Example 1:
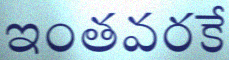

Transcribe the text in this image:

ఇంతవరకే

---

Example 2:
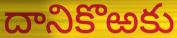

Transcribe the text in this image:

దానికొఱకు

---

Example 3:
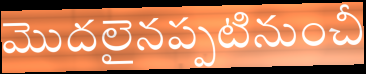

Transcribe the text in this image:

మొదలైనప్పటినుంచీ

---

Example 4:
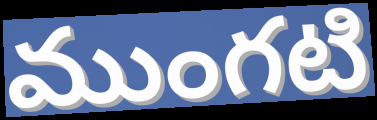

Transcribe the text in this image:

ముంగటి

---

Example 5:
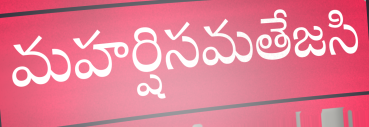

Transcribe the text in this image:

మహర్షిసమతేజసి